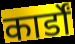
कार्डों